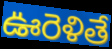
ఊరెళితే